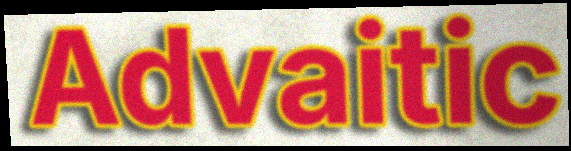
Advaitic